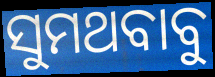
ସୁମଥବାବୁ